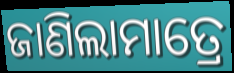
ଜାଣିଲାମାତ୍ରେ